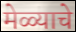
मेळ्याचे